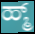
ಹ್ಮ್